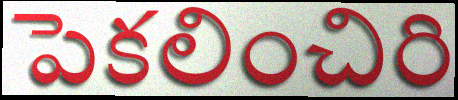
పెకలించిరి